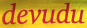
devudu